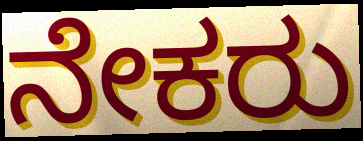
ನೇಕರು